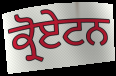
ਕ੍ਰੋਏਟਨ